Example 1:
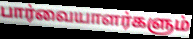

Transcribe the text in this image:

பார்வையாளர்களும்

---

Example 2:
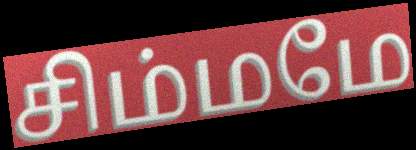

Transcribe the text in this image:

சிம்மமே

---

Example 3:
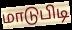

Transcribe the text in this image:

மாடுபிடி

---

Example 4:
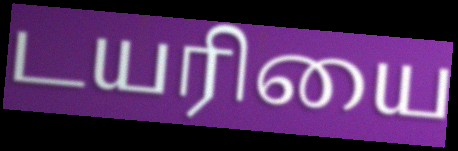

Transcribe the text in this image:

டயரியை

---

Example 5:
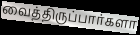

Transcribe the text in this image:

வைத்திருப்பார்களா